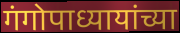
गंगोपाध्यायांच्या